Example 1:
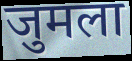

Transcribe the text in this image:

जुमला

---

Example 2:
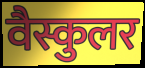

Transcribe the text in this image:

वैस्कुलर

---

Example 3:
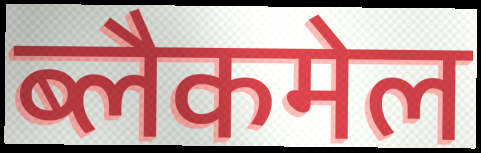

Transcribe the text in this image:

ब्लैकमेल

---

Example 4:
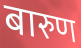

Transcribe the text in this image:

बारुण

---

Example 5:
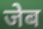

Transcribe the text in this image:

जेब